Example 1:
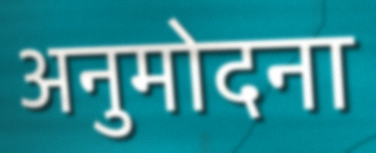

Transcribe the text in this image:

अनुमोदना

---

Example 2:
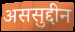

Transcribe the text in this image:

अससुद्दीन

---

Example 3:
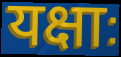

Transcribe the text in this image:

यक्षाः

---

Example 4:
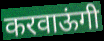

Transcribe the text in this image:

करवाऊंगी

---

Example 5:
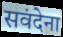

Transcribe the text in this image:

सवंदेना